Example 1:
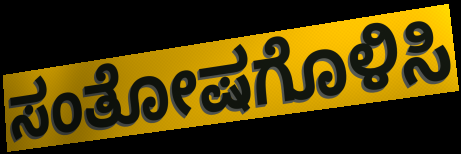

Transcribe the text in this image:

ಸಂತೋಷಗೊಳಿಸಿ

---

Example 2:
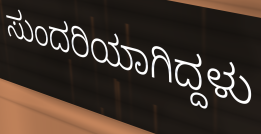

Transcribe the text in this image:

ಸುಂದರಿಯಾಗಿದ್ದಳು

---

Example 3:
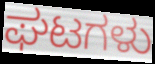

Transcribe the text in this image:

ಘಟಗಳು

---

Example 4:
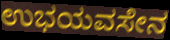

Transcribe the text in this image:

ಉಭಯವಸೇನ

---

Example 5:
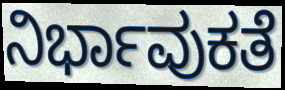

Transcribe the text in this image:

ನಿರ್ಭಾವುಕತೆ